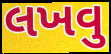
લખવુ